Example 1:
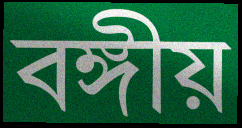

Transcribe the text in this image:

বঙ্গীয়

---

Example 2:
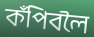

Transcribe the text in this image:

কঁপিবলৈ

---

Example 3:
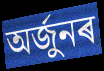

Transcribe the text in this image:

অৰ্জুনৰ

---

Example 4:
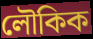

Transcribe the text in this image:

লৌকিক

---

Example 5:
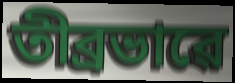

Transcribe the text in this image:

তীব্ৰভাৱে